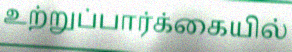
உற்றுப்பார்க்கையில்